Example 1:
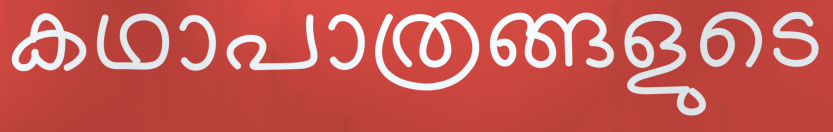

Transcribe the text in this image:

കഥാപാത്രങ്ങളുടെ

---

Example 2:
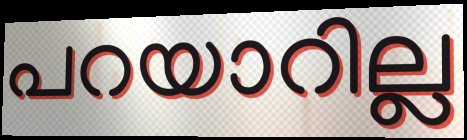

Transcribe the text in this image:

പറയാറില്ല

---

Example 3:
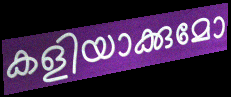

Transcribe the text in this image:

കളിയാക്കുമോ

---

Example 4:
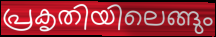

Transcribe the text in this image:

പ്രകൃതിയിലെങ്ങും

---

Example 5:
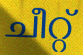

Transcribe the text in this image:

ചീറ്റ്